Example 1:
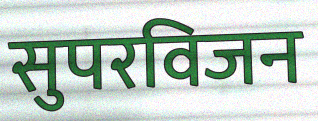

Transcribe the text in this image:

सुपरविजन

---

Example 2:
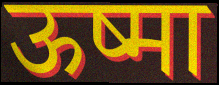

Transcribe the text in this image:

ऊष्मा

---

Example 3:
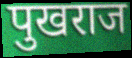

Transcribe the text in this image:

पुखराज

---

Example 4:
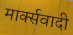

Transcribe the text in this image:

मार्क्सवादी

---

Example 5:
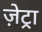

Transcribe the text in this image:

ज़ेट्रा